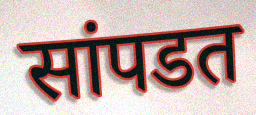
सांपडत